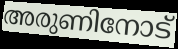
അരുണിനോട്